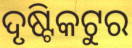
ଦୃଷ୍ଟିକଟୁର